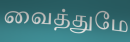
வைத்துமே